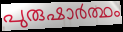
പുരുഷാർത്ഥം